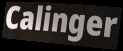
Calinger